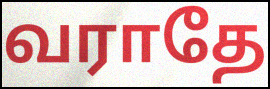
வராதே